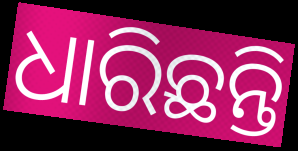
ଧାରିଛନ୍ତି